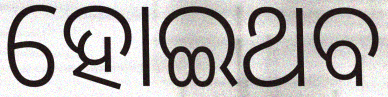
ହୋଇଥବ